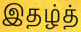
இதழ்த்